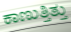
ಕಾಣುತ್ತಿತ್ತು